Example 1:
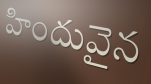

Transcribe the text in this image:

హిందువైన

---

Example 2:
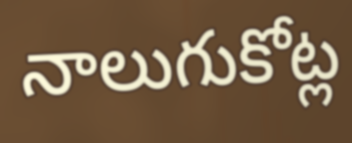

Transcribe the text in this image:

నాలుగుకోట్ల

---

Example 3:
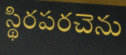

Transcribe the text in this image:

స్థిరపరచెను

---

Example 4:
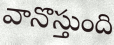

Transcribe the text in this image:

వానొస్తుంది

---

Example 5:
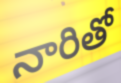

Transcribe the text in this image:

నారితో